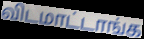
விடமாட்டாங்க